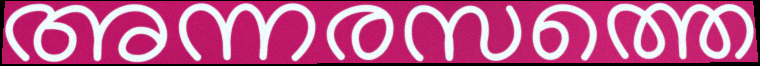
അന്നരസത്തെ